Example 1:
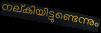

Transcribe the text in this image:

നല്കിയിട്ടുണ്ടെന്നും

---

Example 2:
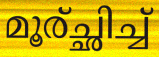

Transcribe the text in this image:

മൂര്ച്ഛിച്ച്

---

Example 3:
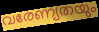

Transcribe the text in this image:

വരേണ്യതയും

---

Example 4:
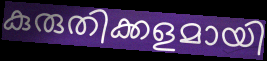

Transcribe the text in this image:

കുരുതിക്കളമായി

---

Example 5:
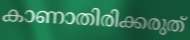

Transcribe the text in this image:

കാണാതിരിക്കരുത്